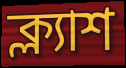
ক্ল্যাশ